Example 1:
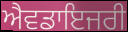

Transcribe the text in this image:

ਐਵਡਾਇਜਰੀ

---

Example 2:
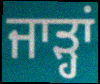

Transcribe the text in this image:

ਜਾੜ੍ਹਾਂ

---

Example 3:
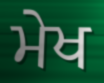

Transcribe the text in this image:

ਮੇਖ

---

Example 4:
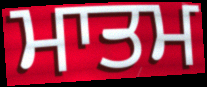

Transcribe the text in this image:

ਮਾਤਮ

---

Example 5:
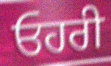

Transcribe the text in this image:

ਓਹਰੀ